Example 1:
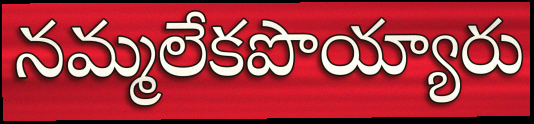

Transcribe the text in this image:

నమ్మలేకపొయ్యారు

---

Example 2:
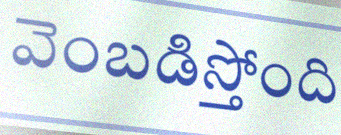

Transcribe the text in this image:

వెంబడిస్తోంది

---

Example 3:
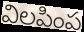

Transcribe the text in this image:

విలపింప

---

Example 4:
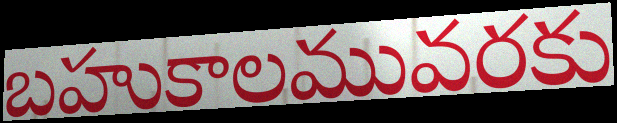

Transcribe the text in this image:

బహుకాలమువరకు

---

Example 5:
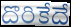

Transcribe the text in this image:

దొరికేదే